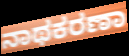
ನಾಥಕರಣಾ